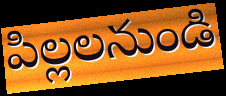
పిల్లలనుండి